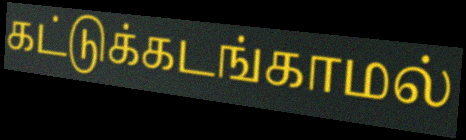
கட்டுக்கடங்காமல்